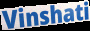
Vinshati